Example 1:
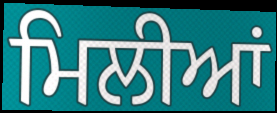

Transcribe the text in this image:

ਮਿਲੀਆਂ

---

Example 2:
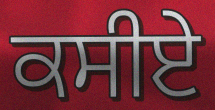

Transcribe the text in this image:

ਕਸੀਏ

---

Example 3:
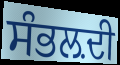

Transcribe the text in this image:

ਸੰਭਲ਼ਦੀ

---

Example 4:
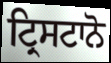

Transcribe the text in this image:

ਟ੍ਰਿਸਟਾਨੋ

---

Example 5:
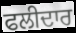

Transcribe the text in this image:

ਫਲੀਦਾਰ